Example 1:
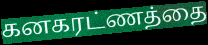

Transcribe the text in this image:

கனகரட்ணத்தை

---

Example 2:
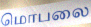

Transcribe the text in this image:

மொபலை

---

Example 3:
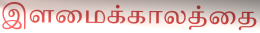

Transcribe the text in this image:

இளமைக்காலத்தை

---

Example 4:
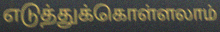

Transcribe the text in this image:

எடுத்துக்கொள்ளலாம்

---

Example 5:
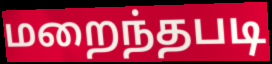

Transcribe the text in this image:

மறைந்தபடி